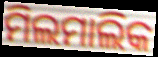
ମିଲମାଲିକ